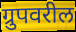
ग्रुपवरील